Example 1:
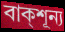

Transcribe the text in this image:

বাক্শূন্য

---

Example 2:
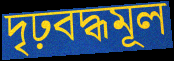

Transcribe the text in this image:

দৃঢ়বদ্ধমূল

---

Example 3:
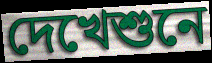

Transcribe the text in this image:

দেখেশুনে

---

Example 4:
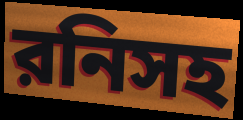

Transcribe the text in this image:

রনিসহ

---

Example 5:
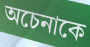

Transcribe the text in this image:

অচেনাকে